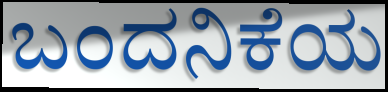
ಬಂದನಿಕೆಯ